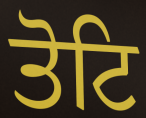
ਤੋਟਿ